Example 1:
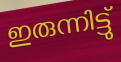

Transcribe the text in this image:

ഇരുന്നിട്ടു്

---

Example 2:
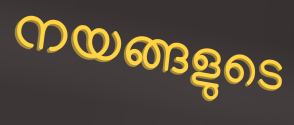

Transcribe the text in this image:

നയങ്ങളുടെ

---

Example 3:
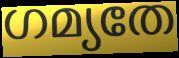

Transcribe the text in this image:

ഗമ്യതേ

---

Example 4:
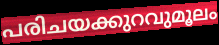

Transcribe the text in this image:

പരിചയക്കുറവുമൂലം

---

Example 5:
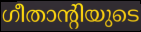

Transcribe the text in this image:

ഗീതാന്റിയുടെ